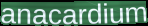
anacardium